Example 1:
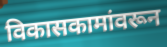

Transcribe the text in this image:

विकासकामांवरून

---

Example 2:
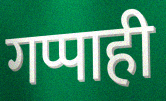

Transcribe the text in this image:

गप्पाही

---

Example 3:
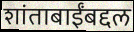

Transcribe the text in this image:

शांताबाईंबद्दल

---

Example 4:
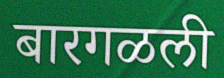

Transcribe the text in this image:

बारगळली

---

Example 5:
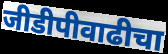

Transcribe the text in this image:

जीडीपीवाढीचा